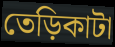
তেড়িকাটা